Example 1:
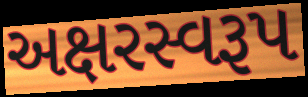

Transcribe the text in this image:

અક્ષરસ્વરૂપ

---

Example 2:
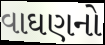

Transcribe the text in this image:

વાઘણનો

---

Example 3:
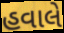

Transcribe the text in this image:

હવાલે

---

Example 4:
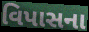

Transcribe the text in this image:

વિપાસના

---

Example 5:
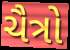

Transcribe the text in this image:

ચૈત્રો